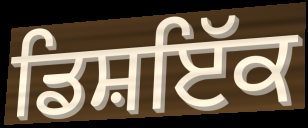
ਡਿਸ਼ਇੱਕ